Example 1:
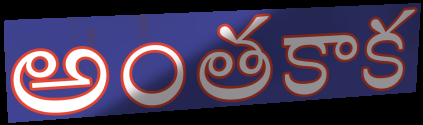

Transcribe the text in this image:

అంతకాక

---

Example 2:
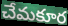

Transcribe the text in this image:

చేమకూర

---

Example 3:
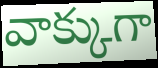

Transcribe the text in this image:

వాక్కుగా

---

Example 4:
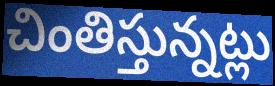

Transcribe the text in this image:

చింతిస్తున్నట్లు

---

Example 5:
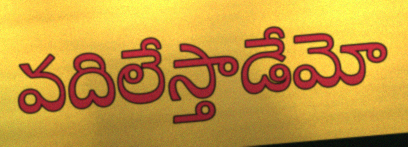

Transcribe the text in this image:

వదిలేస్తాడేమో